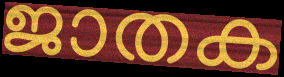
ജാതക